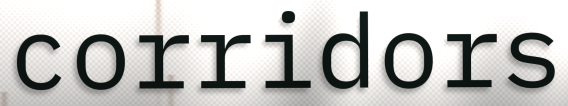
corridors